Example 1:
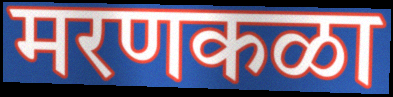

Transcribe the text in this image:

मरणकळा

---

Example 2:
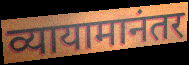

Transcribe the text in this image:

व्यायामानंतर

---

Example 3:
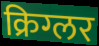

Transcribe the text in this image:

क्रिग्लर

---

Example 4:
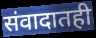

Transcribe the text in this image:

संवादातही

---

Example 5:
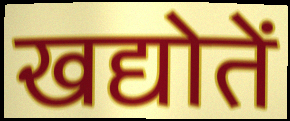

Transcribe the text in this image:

खद्योतें